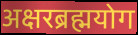
अक्षरब्रह्मयोग